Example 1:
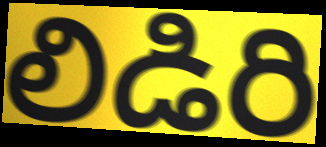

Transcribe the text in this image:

లిడిరి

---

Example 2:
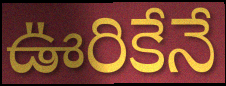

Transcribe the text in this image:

ఊరికేనే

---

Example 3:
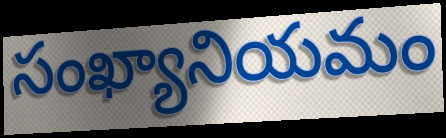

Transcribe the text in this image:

సంఖ్యానియమం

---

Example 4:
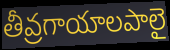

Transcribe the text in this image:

తీవ్రగాయాలపాలై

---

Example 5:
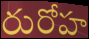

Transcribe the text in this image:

రురోహ